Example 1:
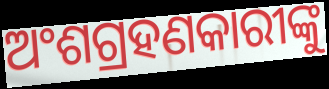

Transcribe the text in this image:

ଅଂଶଗ୍ରହଣକାରୀଙ୍କୁ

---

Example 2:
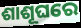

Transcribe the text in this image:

ଶାଶୂଘରେ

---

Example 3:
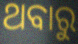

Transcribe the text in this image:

ଥବାରୁ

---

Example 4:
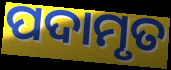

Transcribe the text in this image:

ପଦାମୃତ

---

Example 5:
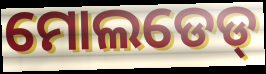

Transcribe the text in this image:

ମୋଲଡେଡ୍